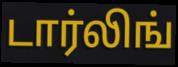
டார்லிங்